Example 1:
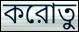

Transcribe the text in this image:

করোতু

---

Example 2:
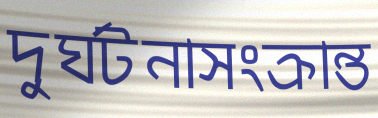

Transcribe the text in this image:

দুর্ঘটনাসংক্রান্ত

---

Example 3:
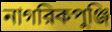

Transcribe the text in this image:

নাগরিকপুঞ্জি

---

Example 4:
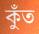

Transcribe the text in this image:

কুঁত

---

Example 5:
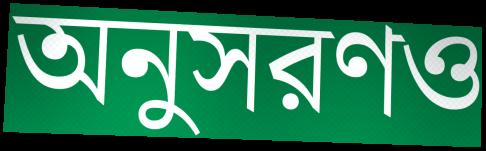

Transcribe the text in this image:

অনুসরণও